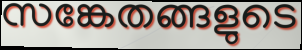
സങ്കേതങ്ങളുടെ